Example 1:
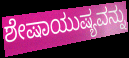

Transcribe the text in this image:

ಶೇಷಾಯುಷ್ಯವನ್ನು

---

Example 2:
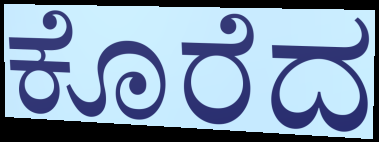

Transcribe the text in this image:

ಕೊರೆದ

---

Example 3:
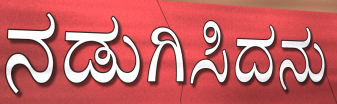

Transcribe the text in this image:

ನಡುಗಿಸಿದನು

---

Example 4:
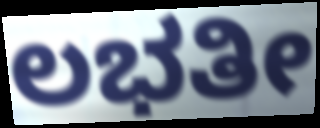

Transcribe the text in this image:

ಲಭತೀ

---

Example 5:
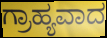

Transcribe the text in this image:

ಗ್ರಾಹ್ಯವಾದ